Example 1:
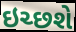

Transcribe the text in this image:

ઇચ્છશે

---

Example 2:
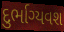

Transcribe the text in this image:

દુર્ભાગ્યવશ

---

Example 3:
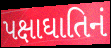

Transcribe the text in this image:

પક્ષાઘાતિનં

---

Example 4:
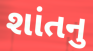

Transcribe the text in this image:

શાંતનુ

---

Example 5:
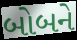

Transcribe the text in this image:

બોબને